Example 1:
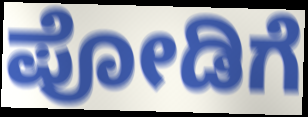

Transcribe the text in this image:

ಪೋಡಿಗೆ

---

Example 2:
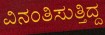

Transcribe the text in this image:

ವಿನಂತಿಸುತ್ತಿದ್ದ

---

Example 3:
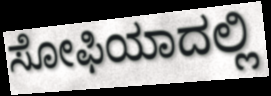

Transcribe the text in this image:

ಸೋಫಿಯಾದಲ್ಲಿ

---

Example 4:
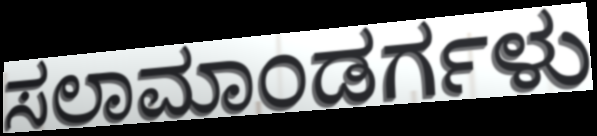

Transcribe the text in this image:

ಸಲಾಮಾಂಡರ್ಗಳು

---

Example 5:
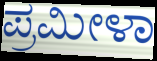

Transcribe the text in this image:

ಪ್ರಮೀಳಾ